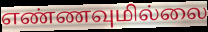
எண்ணவுமில்லை